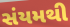
સંયમથી